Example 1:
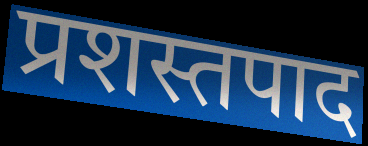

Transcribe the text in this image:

प्रशस्तपाद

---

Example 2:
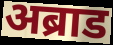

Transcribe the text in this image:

अब्राड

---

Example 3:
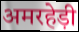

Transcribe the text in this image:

अमरहेड़ी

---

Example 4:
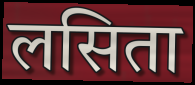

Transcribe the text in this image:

लसिता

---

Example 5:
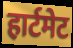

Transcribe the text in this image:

हार्टमेट